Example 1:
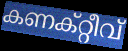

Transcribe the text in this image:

കണക്റ്റീവ്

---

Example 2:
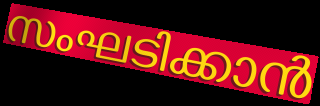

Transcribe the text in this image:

സംഘടിക്കാൻ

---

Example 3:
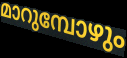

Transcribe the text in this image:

മാറുമ്പോഴും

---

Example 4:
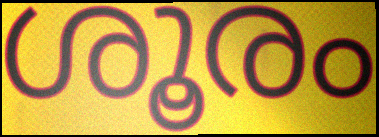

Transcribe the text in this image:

ശൂരം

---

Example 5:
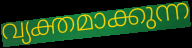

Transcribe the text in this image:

വ്യക്തമാക്കുന്ന